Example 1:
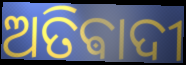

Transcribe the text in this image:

ଅତିଵାଦୀ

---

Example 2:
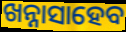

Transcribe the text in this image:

ଖନ୍ନାସାହେବ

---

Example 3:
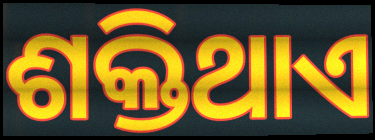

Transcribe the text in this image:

ଶକ୍ତିଥାଏ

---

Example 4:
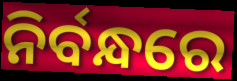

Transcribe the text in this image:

ନିର୍ବନ୍ଧରେ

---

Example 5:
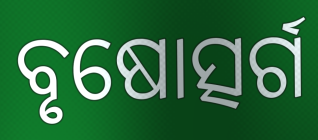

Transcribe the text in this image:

ବୃଷୋତ୍ସର୍ଗ